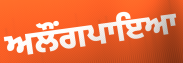
ਅਲੌਂਗਪਾਇਆ